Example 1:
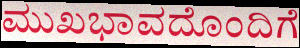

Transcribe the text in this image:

ಮುಖಭಾವದೊಂದಿಗೆ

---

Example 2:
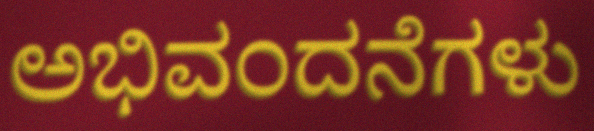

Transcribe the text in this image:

ಅಭಿವಂದನೆಗಳು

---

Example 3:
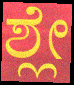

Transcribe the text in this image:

ಶ್ಲೇ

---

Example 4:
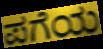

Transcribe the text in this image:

ಪಗೆಯ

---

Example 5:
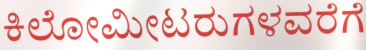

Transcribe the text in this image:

ಕಿಲೋಮೀಟರುಗಳವರೆಗೆ